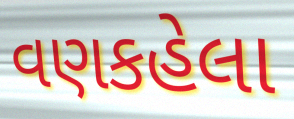
વણકહેલા